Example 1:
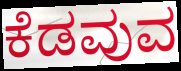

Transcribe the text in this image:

ಕೆಡವುವ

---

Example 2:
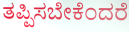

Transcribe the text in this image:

ತಪ್ಪಿಸಬೇಕೆಂದರೆ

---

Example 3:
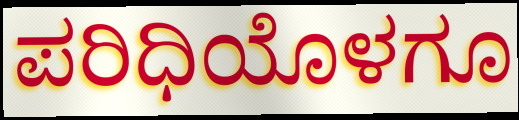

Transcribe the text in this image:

ಪರಿಧಿಯೊಳಗೂ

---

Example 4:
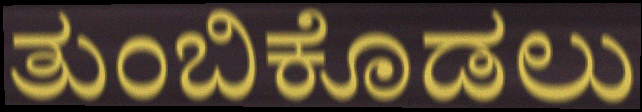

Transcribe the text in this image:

ತುಂಬಿಕೊಡಲು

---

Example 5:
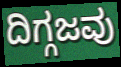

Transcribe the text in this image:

ದಿಗ್ಗಜವು